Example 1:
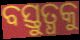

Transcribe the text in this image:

ବସ୍ତୁତ୍ଧକୁ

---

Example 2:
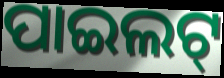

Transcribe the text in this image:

ପାଇଲଟ୍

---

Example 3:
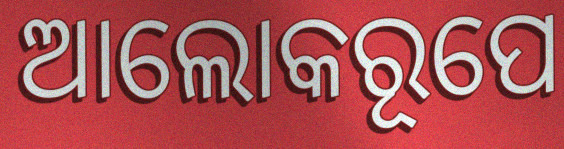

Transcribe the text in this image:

ଆଲୋକରୂପେ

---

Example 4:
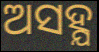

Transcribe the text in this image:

ଅସହ୍ଯ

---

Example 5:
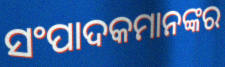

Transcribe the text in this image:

ସଂପାଦକମାନଙ୍କର